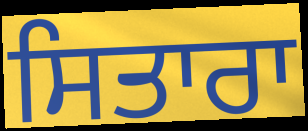
ਸਿਤਾਰਾ